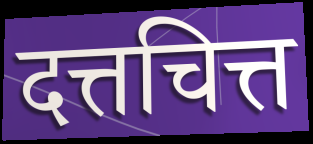
दत्तचित्त